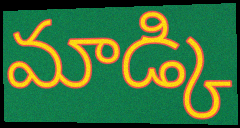
మాడ్కి